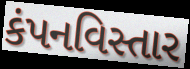
કંપનવિસ્તાર